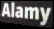
Alamy